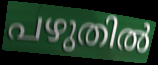
പഴുതിൽ